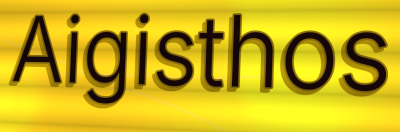
Aigisthos